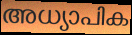
അധ്യാപിക